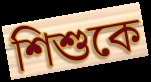
শিশুকে